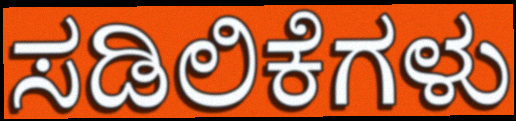
ಸಡಿಲಿಕೆಗಳು